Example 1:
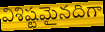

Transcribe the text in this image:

విశిష్టమైనదిగా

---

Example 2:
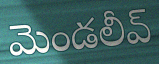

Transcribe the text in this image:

మెండలీవ్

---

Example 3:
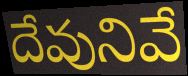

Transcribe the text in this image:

దేవునివే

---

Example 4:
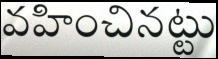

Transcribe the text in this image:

వహించినట్టు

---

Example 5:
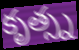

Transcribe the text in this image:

కృత్స్న